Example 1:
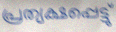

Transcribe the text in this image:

പ്രത്യക്ഷപ്പെട്ടു്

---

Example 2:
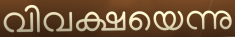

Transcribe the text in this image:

വിവക്ഷയെന്നു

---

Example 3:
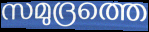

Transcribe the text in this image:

സമുദ്രത്തെ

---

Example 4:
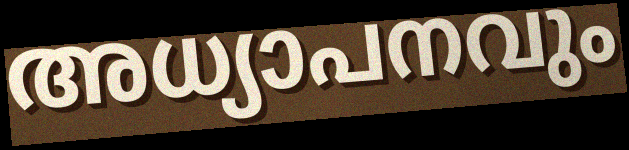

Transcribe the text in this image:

അധ്യാപനവും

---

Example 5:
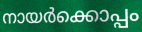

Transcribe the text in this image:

നായർക്കൊപ്പം